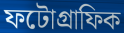
ফটোগ্ৰাফিক